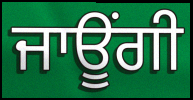
ਜਾਊਂਗੀ